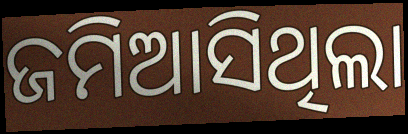
ଜମିଆସିଥିଲା